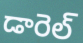
డారెల్